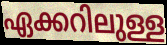
ഏക്കറിലുള്ള